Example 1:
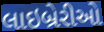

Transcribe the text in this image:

લાઇબ્રેરીઓ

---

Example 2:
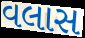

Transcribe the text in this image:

વલાસ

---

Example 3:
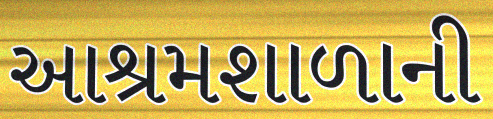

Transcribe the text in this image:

આશ્રમશાળાની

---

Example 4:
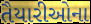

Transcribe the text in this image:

તૈયારીઓના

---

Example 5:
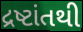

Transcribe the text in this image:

દ્રષ્ટાંતથી